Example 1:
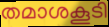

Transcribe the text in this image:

തമാശകൂടി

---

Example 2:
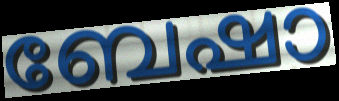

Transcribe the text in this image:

ബേഷാ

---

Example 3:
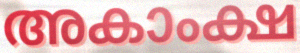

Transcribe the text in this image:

അകാംക്ഷ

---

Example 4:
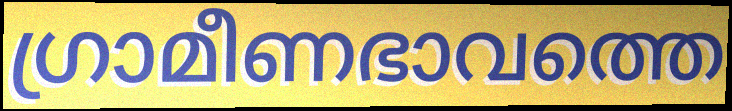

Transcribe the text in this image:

ഗ്രാമീണഭാവത്തെ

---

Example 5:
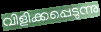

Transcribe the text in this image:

വിളിക്കപ്പെടുന്നു